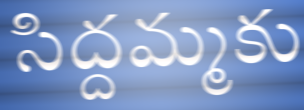
సిద్దమ్మకు